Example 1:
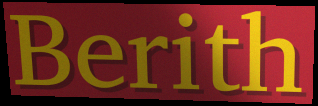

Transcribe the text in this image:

Berith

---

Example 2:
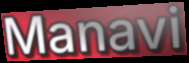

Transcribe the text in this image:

Manavi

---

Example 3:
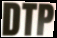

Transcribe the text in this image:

DTP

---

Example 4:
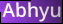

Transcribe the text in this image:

Abhyu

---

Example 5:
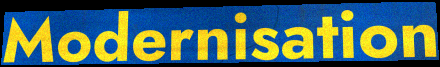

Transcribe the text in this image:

Modernisation